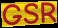
GSR